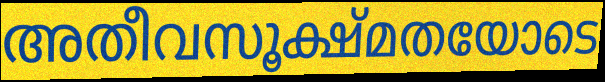
അതീവസൂക്ഷ്മതയോടെ